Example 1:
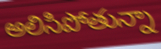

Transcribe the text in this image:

అలిసిపోతున్నా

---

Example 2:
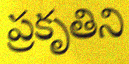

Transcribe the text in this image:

ప్రకృతిని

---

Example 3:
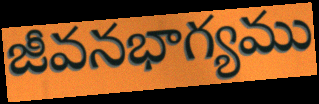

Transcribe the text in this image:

జీవనభాగ్యము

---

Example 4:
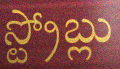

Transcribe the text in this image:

స్ట్రోబ్లు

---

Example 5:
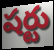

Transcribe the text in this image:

షర్టు